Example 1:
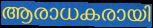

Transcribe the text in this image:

ആരാധകരായി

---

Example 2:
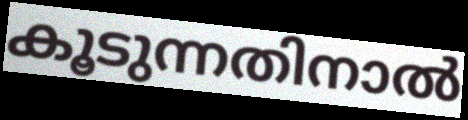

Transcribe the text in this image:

കൂടുന്നതിനാൽ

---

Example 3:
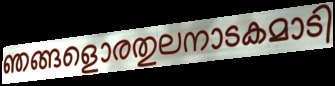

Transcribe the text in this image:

ഞങ്ങളൊരതുലനാടകമാടി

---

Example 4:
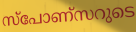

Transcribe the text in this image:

സ്പോണ്സറുടെ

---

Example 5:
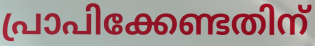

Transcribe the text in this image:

പ്രാപിക്കേണ്ടതിന്